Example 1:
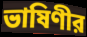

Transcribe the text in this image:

ভাষিণীর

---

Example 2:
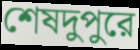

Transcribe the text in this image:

শেষদুপুরে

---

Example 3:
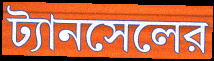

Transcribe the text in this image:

ট্যানসেলের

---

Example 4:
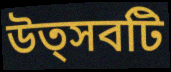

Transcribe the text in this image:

উত্সবটি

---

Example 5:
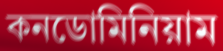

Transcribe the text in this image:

কনডোমিনিয়াম